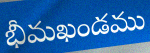
భీమఖండము